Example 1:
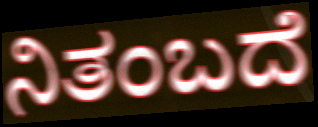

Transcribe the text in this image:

ನಿತಂಬದೆ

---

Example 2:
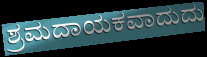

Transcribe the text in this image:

ಶ್ರಮದಾಯಕವಾದುದು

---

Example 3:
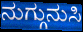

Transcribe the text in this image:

ನುಗ್ಗುನುಸಿ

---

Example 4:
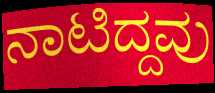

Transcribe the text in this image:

ನಾಟಿದ್ದವು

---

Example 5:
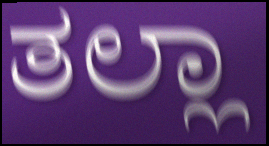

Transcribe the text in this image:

ತಲ್ಲಾ